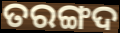
ତରଙ୍ଗଦ